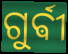
ଗୁର୍ଵୀ